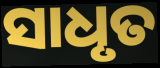
ସାଧୃତ